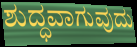
ಶುದ್ಧವಾಗುವುದು